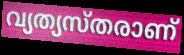
വ്യത്യസ്തരാണ്